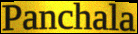
Panchala